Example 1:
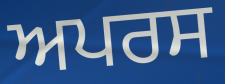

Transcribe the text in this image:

ਅਪਰਸ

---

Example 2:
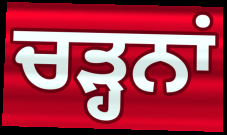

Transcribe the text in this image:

ਚੜ੍ਹਨਾਂ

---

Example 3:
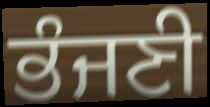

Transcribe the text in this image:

ਭੰਜਣੀ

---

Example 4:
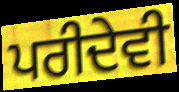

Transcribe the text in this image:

ਪਰੀਦੇਵੀ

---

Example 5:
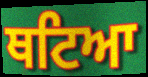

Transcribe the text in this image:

ਥਟਿਆ